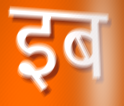
इब